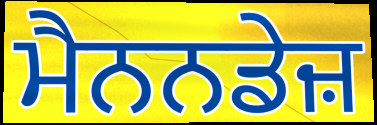
ਮੈਨਨਡੇਜ਼